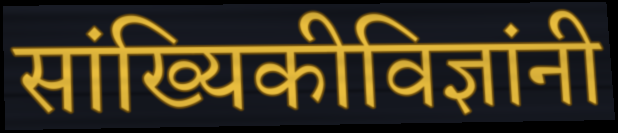
सांख्यिकीविज्ञांनी